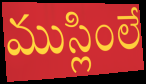
ముస్లింలే